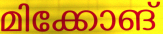
മിക്കോങ്